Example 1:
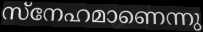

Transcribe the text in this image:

സ്നേഹമാണെന്നു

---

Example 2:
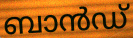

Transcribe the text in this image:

ബാൻഡ്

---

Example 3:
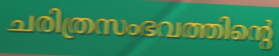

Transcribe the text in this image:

ചരിത്രസംഭവത്തിന്റെ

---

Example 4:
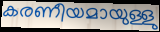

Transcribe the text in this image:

കരണീയമായുള്ളു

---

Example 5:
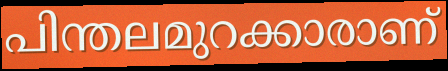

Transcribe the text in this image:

പിന്തലമുറക്കാരാണ്